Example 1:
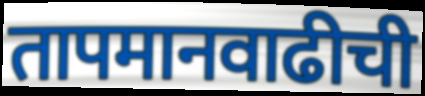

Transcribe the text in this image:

तापमानवाढीची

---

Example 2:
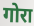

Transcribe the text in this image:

गोरा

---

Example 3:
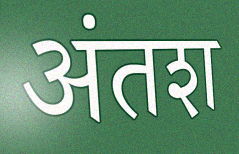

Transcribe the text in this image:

अंतश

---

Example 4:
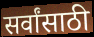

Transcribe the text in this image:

सर्वांसाठी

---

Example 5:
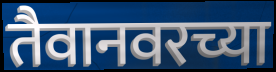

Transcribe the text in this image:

तैवानवरच्या